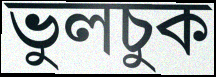
ভুলচুক